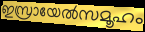
ഇസ്രായേൽസമൂഹം